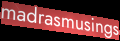
madrasmusings